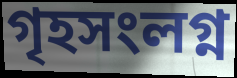
গৃহসংলগ্ন